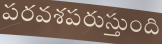
పరవశపరుస్తుంది